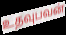
உதவுபவன்